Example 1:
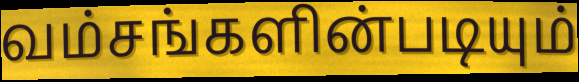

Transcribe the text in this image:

வம்சங்களின்படியும்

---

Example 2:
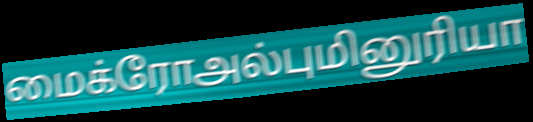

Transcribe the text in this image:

மைக்ரோஅல்புமினுரியா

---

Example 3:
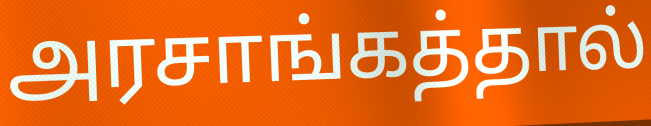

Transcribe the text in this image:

அரசாங்கத்தால்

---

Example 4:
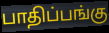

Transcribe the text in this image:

பாதிப்பங்கு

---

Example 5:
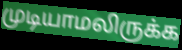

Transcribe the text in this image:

முடியாமலிருக்க